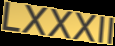
LXXXII